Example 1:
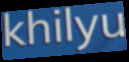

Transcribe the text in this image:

khilyu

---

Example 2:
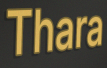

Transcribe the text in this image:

Thara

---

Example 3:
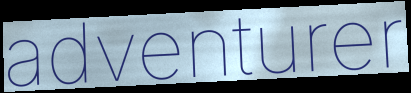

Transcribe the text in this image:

adventurer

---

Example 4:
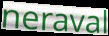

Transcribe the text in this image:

neraval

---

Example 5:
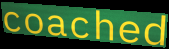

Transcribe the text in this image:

coached